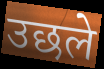
उछले